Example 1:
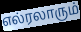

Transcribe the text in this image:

எல்ரலாரும்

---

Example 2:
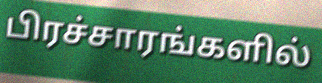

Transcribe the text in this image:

பிரச்சாரங்களில்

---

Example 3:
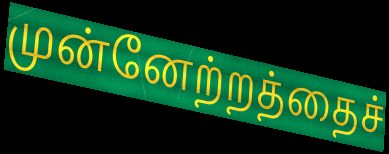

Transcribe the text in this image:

முன்னேற்றத்தைச்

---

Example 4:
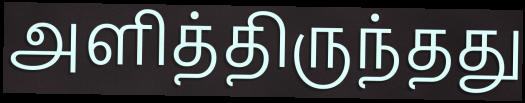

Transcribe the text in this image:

அளித்திருந்தது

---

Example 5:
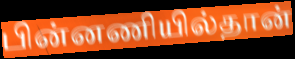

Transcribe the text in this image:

பின்னணியில்தான்